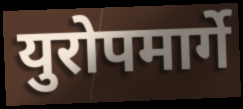
युरोपमार्गे